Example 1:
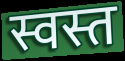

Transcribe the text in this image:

स्वस्त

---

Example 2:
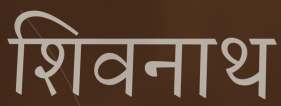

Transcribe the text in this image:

शिवनाथ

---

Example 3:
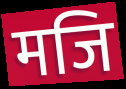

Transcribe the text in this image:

मजि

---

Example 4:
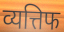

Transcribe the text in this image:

व्यत्तिफ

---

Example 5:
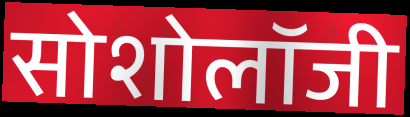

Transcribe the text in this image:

सोशोलॉजी